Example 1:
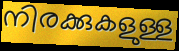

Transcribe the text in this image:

നിരക്കുകളുള്ള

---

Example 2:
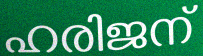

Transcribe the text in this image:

ഹരിജന്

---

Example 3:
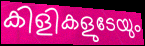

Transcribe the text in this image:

കിളികളുടേയും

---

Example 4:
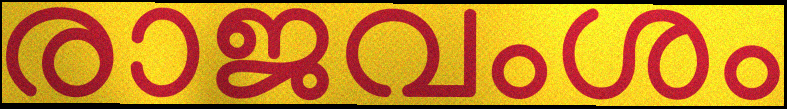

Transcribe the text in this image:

രാജവംശം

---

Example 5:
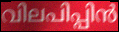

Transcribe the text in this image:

വിലപിപ്പിൻ